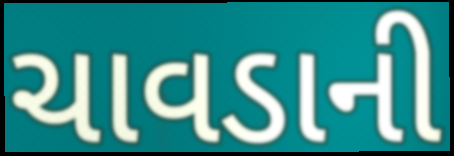
ચાવડાની